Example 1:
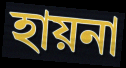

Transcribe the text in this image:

হায়না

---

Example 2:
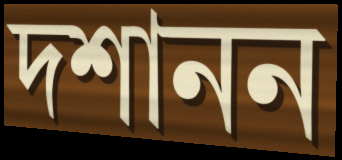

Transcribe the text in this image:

দশানন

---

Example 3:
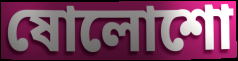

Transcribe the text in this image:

ষোলোশো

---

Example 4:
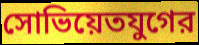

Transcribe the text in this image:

সোভিয়েতযুগের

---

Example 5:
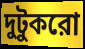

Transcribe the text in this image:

দুটুকরো